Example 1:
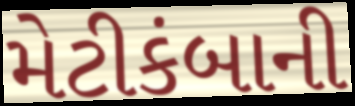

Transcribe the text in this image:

મેટીકંબાની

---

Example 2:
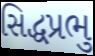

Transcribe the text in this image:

સિદ્ધપ્રભુ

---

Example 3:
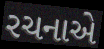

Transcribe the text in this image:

રચનાએ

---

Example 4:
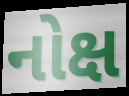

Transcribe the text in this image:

નોક્ષ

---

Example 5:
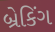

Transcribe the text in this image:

બ્રેકિંગ